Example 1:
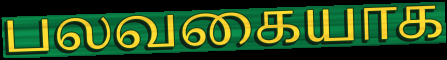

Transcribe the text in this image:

பலவகையாக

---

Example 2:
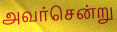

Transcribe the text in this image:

அவர்சென்று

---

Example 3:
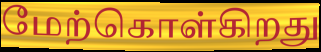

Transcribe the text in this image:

மேற்கொள்கிறது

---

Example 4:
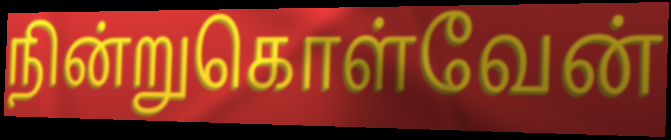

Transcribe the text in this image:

நின்றுகொள்வேன்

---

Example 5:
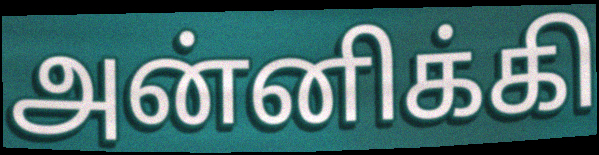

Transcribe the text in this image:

அன்னிக்கி